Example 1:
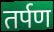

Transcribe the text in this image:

तर्पण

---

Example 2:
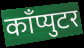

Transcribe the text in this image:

काँप्युटर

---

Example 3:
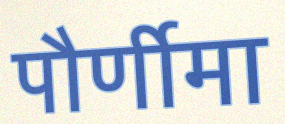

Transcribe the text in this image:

पौर्णीमा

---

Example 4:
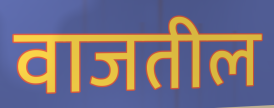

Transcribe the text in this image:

वाजतील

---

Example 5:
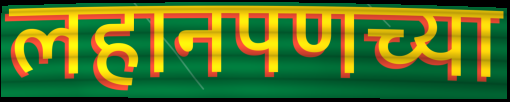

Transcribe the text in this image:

लहानपणच्या